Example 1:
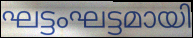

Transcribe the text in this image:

ഘട്ടംഘട്ടമായി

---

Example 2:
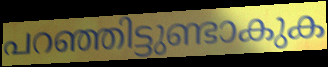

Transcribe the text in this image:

പറഞ്ഞിട്ടുണ്ടാകുക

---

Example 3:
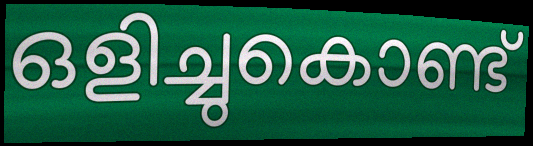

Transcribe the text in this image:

ഒളിച്ചുകൊണ്ട്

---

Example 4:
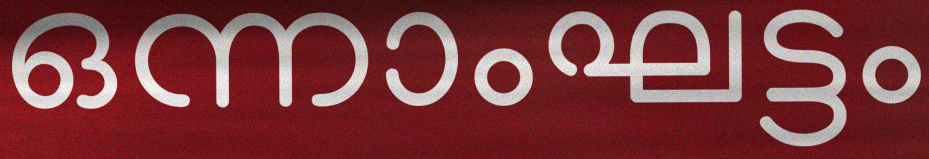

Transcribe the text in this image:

ഒന്നാംഘട്ടം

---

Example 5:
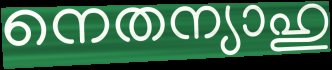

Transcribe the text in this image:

നെതന്യാഹു